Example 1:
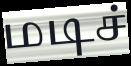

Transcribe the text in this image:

மடிச்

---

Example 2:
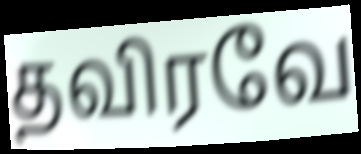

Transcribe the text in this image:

தவிரவே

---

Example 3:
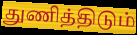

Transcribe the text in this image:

துணித்திடும்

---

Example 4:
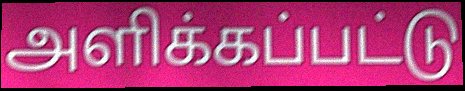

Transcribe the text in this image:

அளிக்கப்பட்டு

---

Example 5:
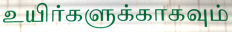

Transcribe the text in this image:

உயிர்களுக்காகவும்